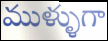
ముళ్ళుగా